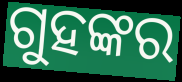
ଗୁହଙ୍କର